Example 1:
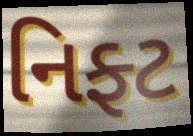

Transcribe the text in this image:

નિફ્ટ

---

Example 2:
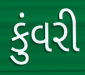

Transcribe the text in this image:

કુંવરી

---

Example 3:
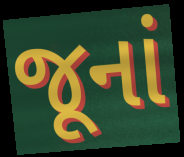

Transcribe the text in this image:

જૂનાં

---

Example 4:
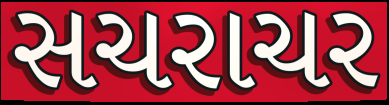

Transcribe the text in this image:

સચરાચર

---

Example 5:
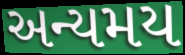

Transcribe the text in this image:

અન્યમય